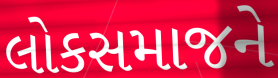
લોકસમાજને